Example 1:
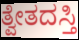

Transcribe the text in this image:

ತ್ವೇತದಸ್ತಿ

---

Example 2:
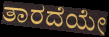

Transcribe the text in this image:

ತಾರದೆಯೇ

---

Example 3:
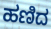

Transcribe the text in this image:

ಹಣಿದ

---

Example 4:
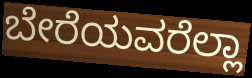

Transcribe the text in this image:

ಬೇರೆಯವರೆಲ್ಲಾ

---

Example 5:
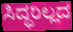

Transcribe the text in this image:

ಸಿದ್ಧರಿಲ್ಲದ